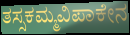
ತಸ್ಸಕಮ್ಮವಿಪಾಕೇನ